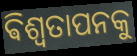
ଵିଶ୍ଵତାପନକୁ